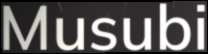
Musubi